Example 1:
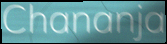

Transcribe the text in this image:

Chananja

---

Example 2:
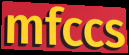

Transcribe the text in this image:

mfccs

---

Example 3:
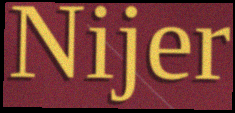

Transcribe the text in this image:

Nijer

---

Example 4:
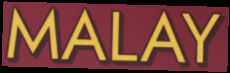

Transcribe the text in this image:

MALAY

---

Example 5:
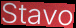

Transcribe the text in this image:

Stavo